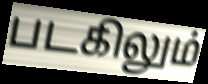
படகிலும்